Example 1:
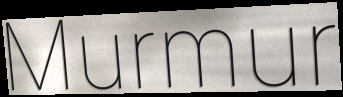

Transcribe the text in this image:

Murmur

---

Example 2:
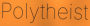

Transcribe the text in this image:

Polytheist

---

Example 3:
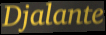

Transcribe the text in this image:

Djalante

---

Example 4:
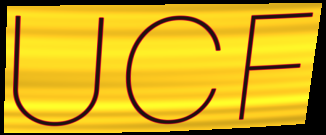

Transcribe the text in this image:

UCF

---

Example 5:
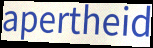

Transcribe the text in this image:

apertheid